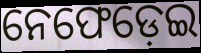
ନେଫେଡ଼େଇ